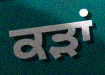
ਕੜਾਂ